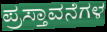
ಪ್ರಸ್ತಾವನೆಗಳ